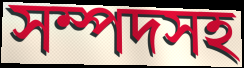
সম্পদসহ